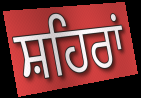
ਸ਼ਹਿਰਾਂ